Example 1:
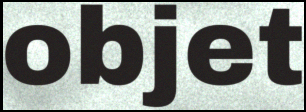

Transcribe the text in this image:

objet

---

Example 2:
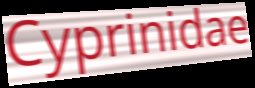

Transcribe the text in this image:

Cyprinidae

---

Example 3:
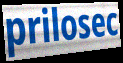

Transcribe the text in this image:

prilosec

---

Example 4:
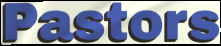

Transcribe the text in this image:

Pastors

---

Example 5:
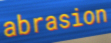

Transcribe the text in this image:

abrasion